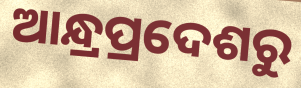
ଆନ୍ଧ୍ରପ୍ରଦେଶରୁ